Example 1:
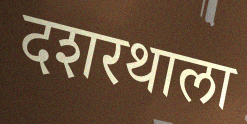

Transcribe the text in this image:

दशरथाला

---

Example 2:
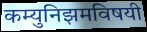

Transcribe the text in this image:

कम्युनिझमविषयी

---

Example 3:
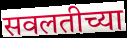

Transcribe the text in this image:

सवलतीच्या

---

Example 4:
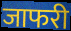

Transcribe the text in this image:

जाफरी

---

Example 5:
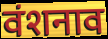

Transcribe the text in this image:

वंशनाव